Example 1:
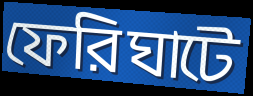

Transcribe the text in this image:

ফেরিঘাটে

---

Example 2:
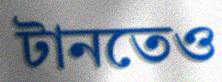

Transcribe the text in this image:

টানতেও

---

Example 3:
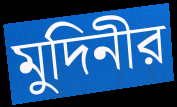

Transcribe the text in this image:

মুদিনীর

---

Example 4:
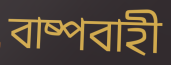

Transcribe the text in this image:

বাষ্পবাহী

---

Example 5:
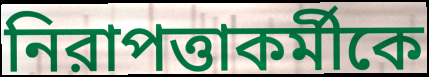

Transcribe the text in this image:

নিরাপত্তাকর্মীকে